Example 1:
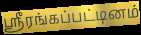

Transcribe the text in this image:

ஸ்ரீரங்கப்பட்டினம்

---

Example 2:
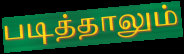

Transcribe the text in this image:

படித்தாலும்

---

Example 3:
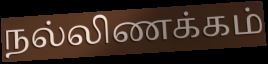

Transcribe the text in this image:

நல்லிணக்கம்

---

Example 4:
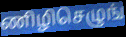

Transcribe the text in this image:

ணிழிசெழுங்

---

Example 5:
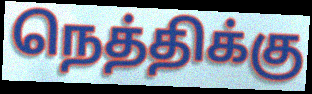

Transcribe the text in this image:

நெத்திக்கு